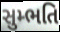
સુમ્ભતિ